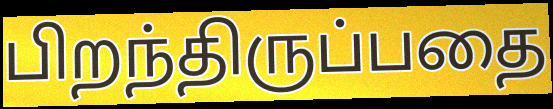
பிறந்திருப்பதை